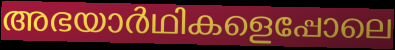
അഭയാർഥികളെപ്പോലെ